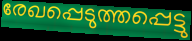
രേഖപ്പെടുത്തപ്പെട്ടു